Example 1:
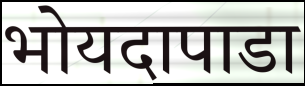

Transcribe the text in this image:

भोयदापाडा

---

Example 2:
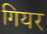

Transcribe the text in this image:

गियर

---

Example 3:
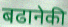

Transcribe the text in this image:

बढानेकी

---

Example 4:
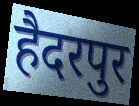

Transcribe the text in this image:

हैदरपुर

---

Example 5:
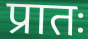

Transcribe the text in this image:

प्रातः